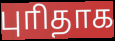
புரிதாக